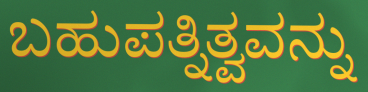
ಬಹುಪತ್ನಿತ್ವವನ್ನು